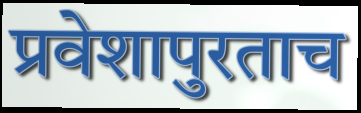
प्रवेशापुरताच